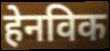
हेनविक